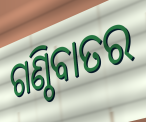
ଗଣ୍ଠିବାତର